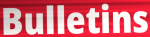
Bulletins